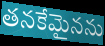
తనకేమైనను